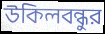
উকিলবন্ধুর